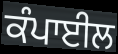
ਕੰਪਾਈਲ